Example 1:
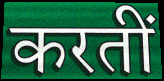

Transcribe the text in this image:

करतीं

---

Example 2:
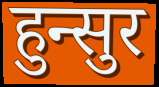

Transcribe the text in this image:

हुन्सुर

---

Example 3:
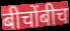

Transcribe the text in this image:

बीचोंबीच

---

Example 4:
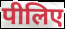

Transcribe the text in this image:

पीलिए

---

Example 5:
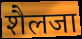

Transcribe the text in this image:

शैलजा